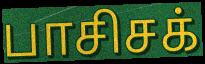
பாசிசக்